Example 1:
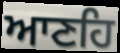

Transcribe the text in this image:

ਆਣਹਿ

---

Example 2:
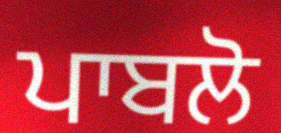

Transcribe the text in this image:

ਪਾਬਲੋ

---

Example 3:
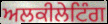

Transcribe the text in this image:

ਅਲਕੀਲੇਟਿੰਗ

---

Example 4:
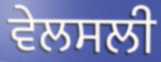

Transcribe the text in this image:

ਵੇਲਸਲੀ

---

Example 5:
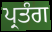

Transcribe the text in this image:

ਪ੍ਰਤੰਗ